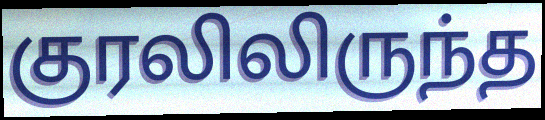
குரலிலிருந்த